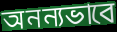
অনন্যভাবে